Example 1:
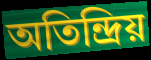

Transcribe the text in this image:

অতিন্দ্রিয়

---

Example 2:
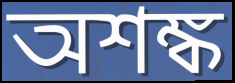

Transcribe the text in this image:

অশঙ্ক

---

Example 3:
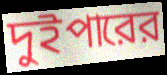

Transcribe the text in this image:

দুইপারের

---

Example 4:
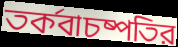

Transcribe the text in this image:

তর্কবাচষ্পতির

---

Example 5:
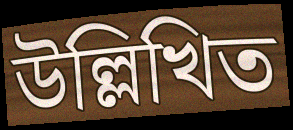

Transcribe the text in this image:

উল্লিখিত